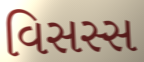
વિસસ્સ